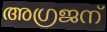
അഗ്രജന്